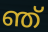
ഞ്